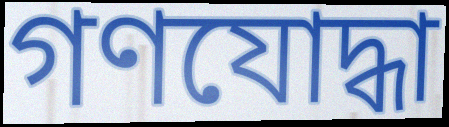
গণযোদ্ধা